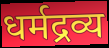
धर्मद्रव्य